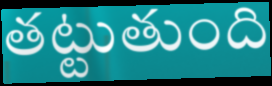
తట్టుతుంది